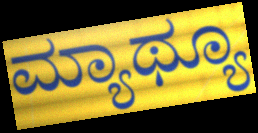
ಮ್ಯಾಥ್ಯೂ